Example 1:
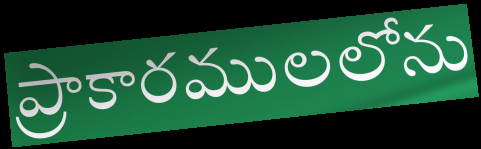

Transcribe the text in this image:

ప్రాకారములలోను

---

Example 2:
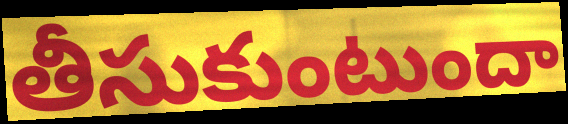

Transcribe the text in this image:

తీసుకుంటుందా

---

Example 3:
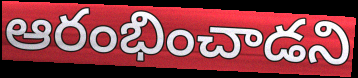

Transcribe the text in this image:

ఆరంభించాడని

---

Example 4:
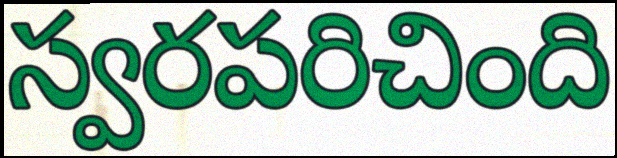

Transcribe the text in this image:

స్వరపరిచింది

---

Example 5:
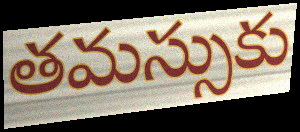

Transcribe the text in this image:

తమస్సుకు